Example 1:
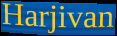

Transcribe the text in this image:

Harjivan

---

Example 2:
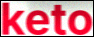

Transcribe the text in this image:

keto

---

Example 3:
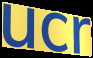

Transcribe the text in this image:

ucr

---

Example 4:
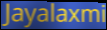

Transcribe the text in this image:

Jayalaxmi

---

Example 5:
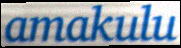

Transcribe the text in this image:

amakulu